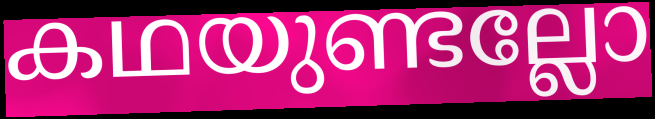
കഥയുണ്ടല്ലോ